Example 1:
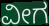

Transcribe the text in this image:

ವೀಗ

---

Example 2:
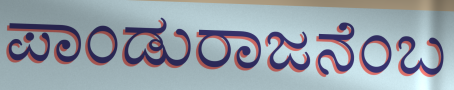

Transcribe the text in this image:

ಪಾಂಡುರಾಜನೆಂಬ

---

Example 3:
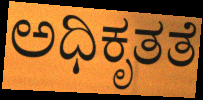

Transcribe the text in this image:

ಅಧಿಕೃತತೆ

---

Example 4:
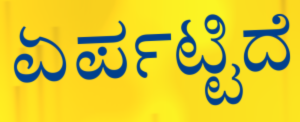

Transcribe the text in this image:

ಏರ್ಪಟ್ಟಿದೆ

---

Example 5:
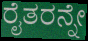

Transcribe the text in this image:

ರೈತರನ್ನೇ